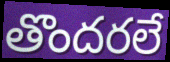
తొందరలే